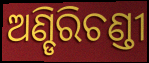
ଅଣ୍ଡିରିଚଣ୍ଡୀ